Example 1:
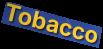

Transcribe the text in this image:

Tobacco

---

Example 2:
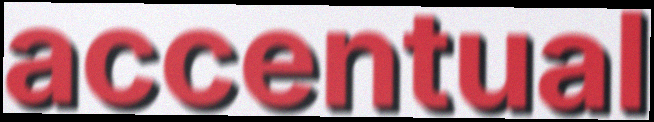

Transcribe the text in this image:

accentual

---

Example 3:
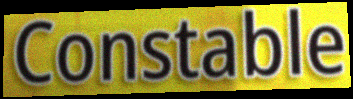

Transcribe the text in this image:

Constable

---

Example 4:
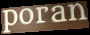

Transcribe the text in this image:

poran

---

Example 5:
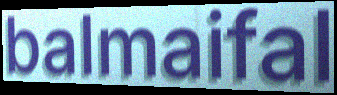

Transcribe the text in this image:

balmaifal